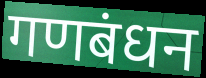
गणबंधन